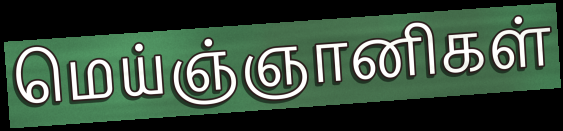
மெய்ஞ்ஞானிகள்